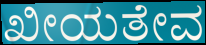
ಖೀಯತೇವ